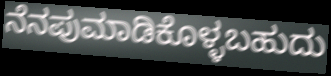
ನೆನಪುಮಾಡಿಕೊಳ್ಳಬಹುದು